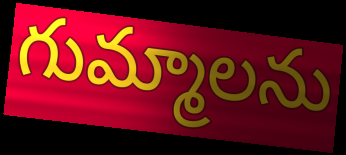
గుమ్మాలను